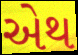
એથ